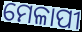
ମେଳାପୀ